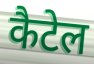
कैटेल